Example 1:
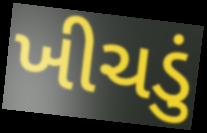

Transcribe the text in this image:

ખીચડું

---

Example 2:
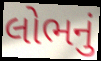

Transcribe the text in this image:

લોભનું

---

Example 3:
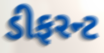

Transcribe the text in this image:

ડીફરન્ટ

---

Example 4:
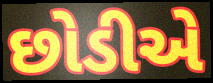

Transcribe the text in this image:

છોડીએ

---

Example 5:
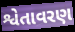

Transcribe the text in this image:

શ્વેતાવરણ